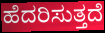
ಹೆದರಿಸುತ್ತದೆ